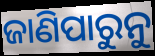
ଜାଣିପାରୁନୁ